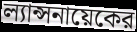
ল্যান্সনায়েকের